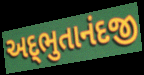
અદ્‌ભુતાનંદજી